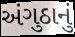
અંગુઠાનું